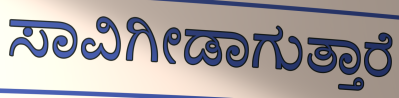
ಸಾವಿಗೀಡಾಗುತ್ತಾರೆ